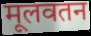
मूलवतन